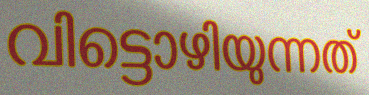
വിട്ടൊഴിയുന്നത്